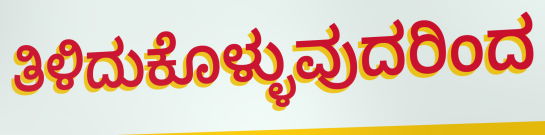
ತಿಳಿದುಕೊಳ್ಳುವುದರಿಂದ